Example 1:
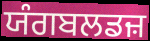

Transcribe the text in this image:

ਯੰਗਬਲਡਜ਼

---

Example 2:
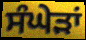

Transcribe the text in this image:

ਸੰਘੇੜਾਂ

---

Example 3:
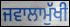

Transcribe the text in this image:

ਜਵਾਲਾਮੁੱਖੀ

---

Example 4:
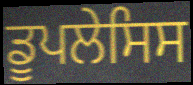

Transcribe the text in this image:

ਡੂਪਲੇਸਿਸ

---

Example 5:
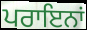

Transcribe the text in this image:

ਪਰਾਇਨਾਂ